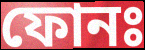
ফোনঃ